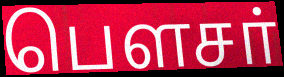
பௌசர்